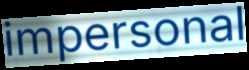
impersonal